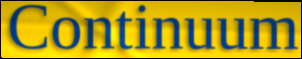
Continuum